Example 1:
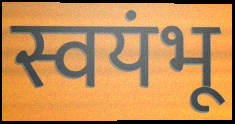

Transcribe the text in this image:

स्वयंभू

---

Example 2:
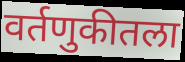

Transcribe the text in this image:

वर्तणुकीतला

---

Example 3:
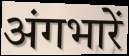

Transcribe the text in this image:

अंगभारें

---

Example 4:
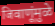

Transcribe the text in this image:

जिवाणूंमुळे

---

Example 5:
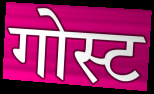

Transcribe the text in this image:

गोस्ट